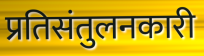
प्रतिसंतुलनकारी